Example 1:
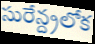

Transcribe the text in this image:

సురేన్ద్రలోక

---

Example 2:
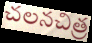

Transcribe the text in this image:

చలనచిత్ర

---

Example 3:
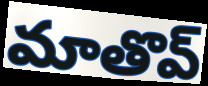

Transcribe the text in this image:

మాతొవ్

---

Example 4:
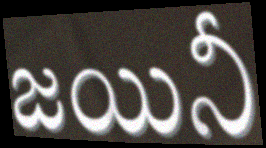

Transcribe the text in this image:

జయినీ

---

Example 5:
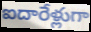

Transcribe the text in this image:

ఐదారేళ్లుగా